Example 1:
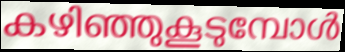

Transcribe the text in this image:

കഴിഞ്ഞുകൂടുമ്പോൾ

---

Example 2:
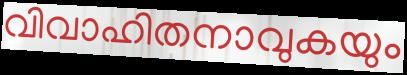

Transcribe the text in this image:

വിവാഹിതനാവുകയും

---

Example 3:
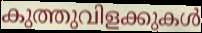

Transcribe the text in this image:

കുത്തുവിളക്കുകൾ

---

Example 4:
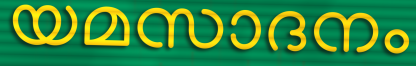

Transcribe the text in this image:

യമസാദനം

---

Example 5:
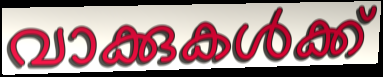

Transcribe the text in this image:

വാക്കുകൾക്ക്